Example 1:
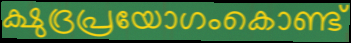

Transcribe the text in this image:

ക്ഷുദ്രപ്രയോഗംകൊണ്ട്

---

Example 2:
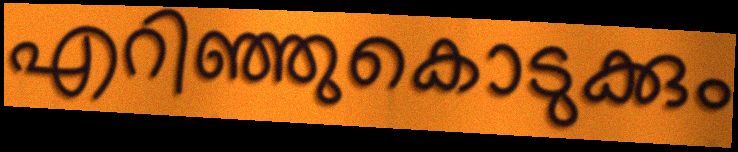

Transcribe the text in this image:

എറിഞ്ഞുകൊടുക്കും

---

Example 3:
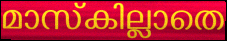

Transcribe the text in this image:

മാസ്‌കില്ലാതെ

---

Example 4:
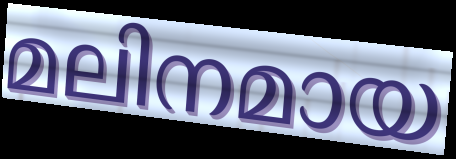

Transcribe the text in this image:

മലിനമായ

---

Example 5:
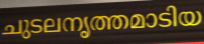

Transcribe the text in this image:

ചുടലനൃത്തമാടിയ